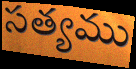
సత్యము